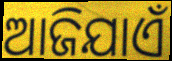
ଆଜିଯାଏଁ